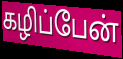
கழிப்பேன்